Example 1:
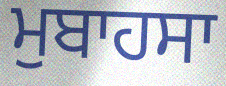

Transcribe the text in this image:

ਮੁਬਾਹਸਾ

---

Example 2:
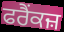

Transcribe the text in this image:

ਫਰੈਂਕਜ਼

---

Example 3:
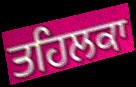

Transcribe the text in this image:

ਤਹਿਲਕਾ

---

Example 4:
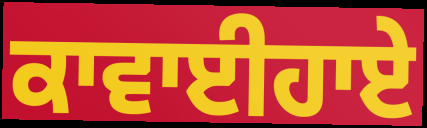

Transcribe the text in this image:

ਕਾਵਾਈਹਾਏ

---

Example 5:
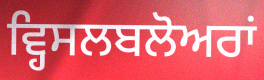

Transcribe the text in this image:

ਵ੍ਹਿਸਲਬਲੋਅਰਾਂ